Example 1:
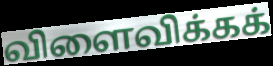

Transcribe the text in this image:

விளைவிக்கக்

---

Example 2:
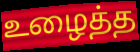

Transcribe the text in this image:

உழைத்த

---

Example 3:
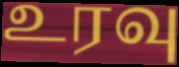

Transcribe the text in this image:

உரவு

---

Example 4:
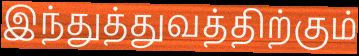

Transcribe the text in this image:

இந்துத்துவத்திற்கும்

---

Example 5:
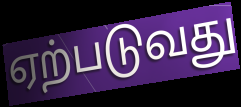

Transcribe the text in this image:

ஏற்படுவது